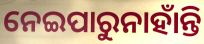
ନେଇପାରୁନାହାଁନ୍ତି